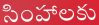
సింహాలకు